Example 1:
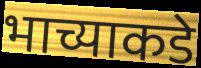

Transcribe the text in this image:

भाच्याकडे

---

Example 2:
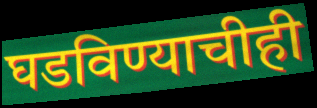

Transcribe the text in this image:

घडविण्याचीही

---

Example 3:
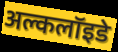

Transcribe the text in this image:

अल्कलॉइडे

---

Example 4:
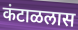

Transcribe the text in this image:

कंटाळलास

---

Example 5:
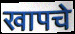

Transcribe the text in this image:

खापचे